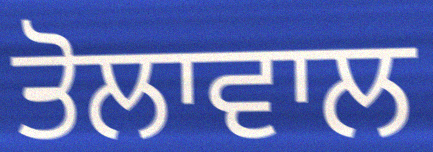
ਤੋਲਾਵਾਲ